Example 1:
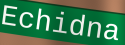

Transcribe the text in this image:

Echidna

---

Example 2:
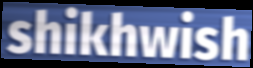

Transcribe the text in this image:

shikhwish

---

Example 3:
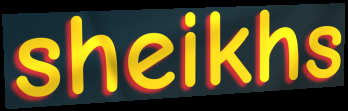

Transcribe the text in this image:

sheikhs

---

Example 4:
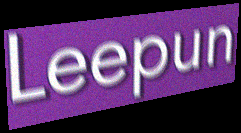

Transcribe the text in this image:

Leepun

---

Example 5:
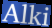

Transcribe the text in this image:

Alki